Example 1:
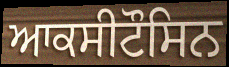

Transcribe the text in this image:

ਆਕਸੀਟੌਸਿਨ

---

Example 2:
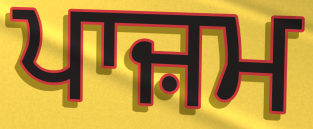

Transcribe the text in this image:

ਪਾਜ਼ਮ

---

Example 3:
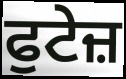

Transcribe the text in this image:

ਫੁਟੇਜ਼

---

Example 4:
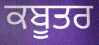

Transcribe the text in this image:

ਕਬੂਤਰ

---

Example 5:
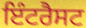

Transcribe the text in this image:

ਇੰਟਰੈਸਟ